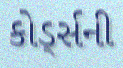
કોર્ડ્સની